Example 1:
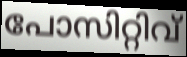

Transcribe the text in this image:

പോസിറ്റിവ്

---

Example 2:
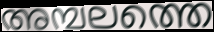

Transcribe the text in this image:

അമ്പലത്തെ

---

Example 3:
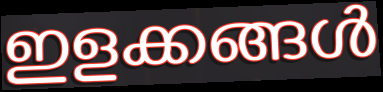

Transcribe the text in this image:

ഇളക്കങ്ങൾ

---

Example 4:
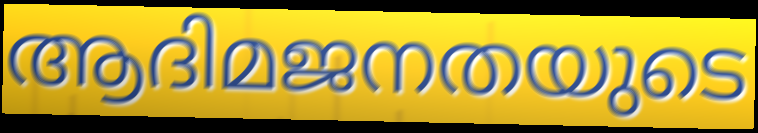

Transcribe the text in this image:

ആദിമജനതയുടെ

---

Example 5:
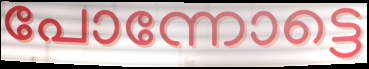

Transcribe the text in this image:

പോന്നോട്ടെ